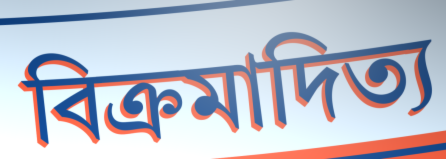
বিক্রমাদিত্য